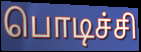
பொடிச்சி